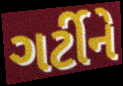
ગર્ટીને